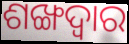
ଶଙ୍ଖଦ୍ୱାର